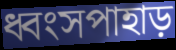
ধ্বংসপাহাড়